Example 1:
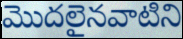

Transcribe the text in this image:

మొదలైనవాటిని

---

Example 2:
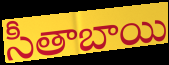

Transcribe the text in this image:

సీతాబాయి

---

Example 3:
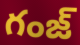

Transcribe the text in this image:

గంజ్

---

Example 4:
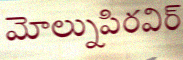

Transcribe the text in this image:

మోల్నుపిరవిర్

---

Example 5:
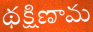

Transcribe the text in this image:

థక్షిణామ